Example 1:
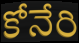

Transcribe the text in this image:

కోనేరి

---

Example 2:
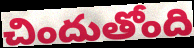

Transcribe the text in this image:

చిందుతోంది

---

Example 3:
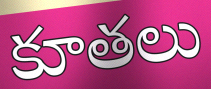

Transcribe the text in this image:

కూతలు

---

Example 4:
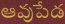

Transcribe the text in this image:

ఆవుపేడ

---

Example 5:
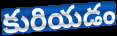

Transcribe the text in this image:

కురియడం